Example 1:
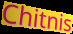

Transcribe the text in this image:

Chitnis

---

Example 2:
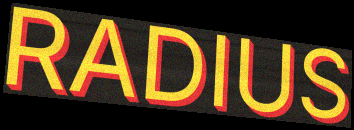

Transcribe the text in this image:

RADIUS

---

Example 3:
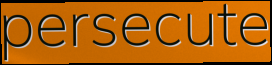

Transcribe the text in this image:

persecute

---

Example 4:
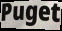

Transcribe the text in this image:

Puget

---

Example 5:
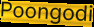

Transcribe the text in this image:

Poongodi